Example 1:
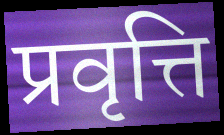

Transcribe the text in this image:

प्रवृत्ति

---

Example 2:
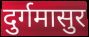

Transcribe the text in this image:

दुर्गमासुर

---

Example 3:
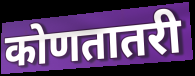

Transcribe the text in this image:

कोणतातरी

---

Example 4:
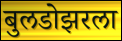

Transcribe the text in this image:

बुलडोझरला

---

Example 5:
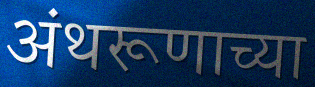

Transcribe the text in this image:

अंथरूणाच्या